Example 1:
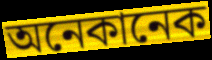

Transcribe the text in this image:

অনেকানেক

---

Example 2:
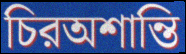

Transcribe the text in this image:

চিরঅশান্তি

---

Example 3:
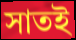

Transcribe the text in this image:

সাতই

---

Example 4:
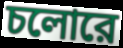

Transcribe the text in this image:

চলোরে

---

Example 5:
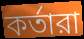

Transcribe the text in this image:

কর্তারা